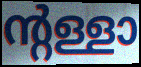
ന്റള്ളാ